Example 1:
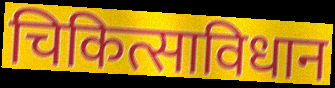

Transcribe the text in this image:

चिकित्साविधान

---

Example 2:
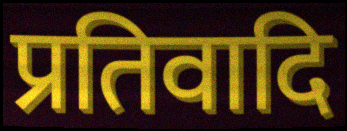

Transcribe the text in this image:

प्रतिवादि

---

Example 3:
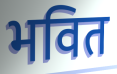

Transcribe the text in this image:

भवित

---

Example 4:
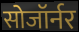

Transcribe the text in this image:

सोजॉर्नर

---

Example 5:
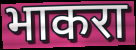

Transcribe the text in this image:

भाकरा